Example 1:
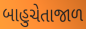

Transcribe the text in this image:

બાહુચેતાજાળ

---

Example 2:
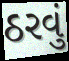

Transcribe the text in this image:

ઠરવું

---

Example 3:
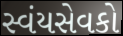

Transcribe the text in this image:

સ્વંયસેવકો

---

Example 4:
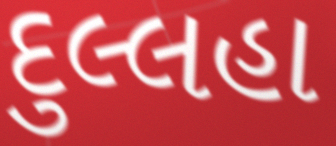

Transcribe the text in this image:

દુલ્લહા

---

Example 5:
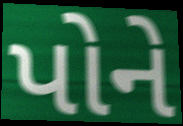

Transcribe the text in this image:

પોને